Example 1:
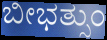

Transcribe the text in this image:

ಬೀಭತ್ಸುಂ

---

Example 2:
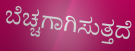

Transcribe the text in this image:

ಬೆಚ್ಚಗಾಗಿಸುತ್ತದೆ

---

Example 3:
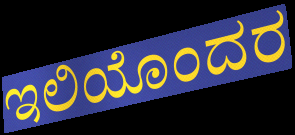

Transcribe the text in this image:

ಇಲಿಯೊಂದರ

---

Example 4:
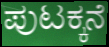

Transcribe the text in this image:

ಪುಟಕ್ಕನೆ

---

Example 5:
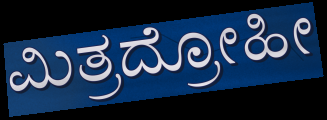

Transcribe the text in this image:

ಮಿತ್ರದ್ರೋಹೀ